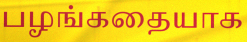
பழங்கதையாக